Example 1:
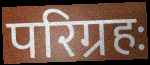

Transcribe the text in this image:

परिग्रहः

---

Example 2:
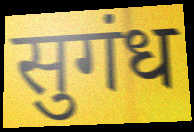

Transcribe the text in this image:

सुगंध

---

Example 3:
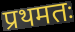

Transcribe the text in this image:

प्रथमतः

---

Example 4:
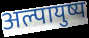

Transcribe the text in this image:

अल्पायुष्य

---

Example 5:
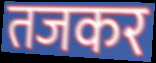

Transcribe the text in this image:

तजकर